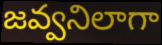
జవ్వనిలాగా